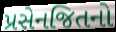
પ્રસેનજિતનો